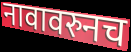
नावावरुनच